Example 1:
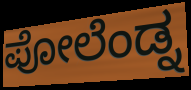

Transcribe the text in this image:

ಪೋಲೆಂಡ್ನ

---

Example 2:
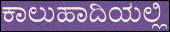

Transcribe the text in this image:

ಕಾಲುಹಾದಿಯಲ್ಲಿ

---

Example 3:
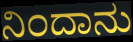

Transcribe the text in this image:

ನಿಂದಾನು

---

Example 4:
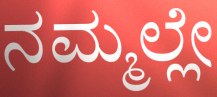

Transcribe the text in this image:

ನಮ್ಮಲ್ಲೇ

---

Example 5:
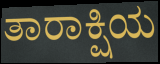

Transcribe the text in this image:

ತಾರಾಕ್ಷಿಯ